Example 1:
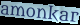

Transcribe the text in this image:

amonkar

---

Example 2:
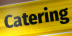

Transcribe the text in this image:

Catering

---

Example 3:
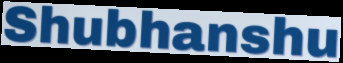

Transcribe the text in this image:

Shubhanshu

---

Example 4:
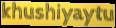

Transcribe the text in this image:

khushiyaytu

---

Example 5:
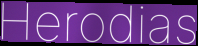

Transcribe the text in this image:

Herodias